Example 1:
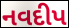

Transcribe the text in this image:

નવદીપ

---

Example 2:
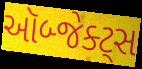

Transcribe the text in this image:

ઑબ્જેક્ટ્સ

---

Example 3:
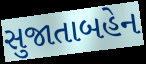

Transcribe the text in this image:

સુજાતાબહેન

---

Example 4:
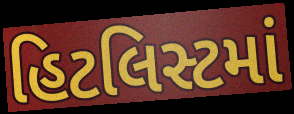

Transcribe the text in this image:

હિટલિસ્ટમાં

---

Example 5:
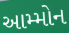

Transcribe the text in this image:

આમ્મોન